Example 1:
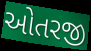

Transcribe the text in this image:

ઓતરજી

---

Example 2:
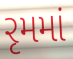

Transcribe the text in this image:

રૃમમાં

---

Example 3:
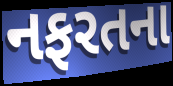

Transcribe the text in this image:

નફરતના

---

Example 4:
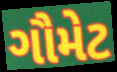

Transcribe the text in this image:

ગૌમેટ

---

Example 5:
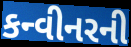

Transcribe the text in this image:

કન્વીનરની